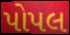
પોપલ